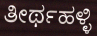
ತೀರ್ಥಹಳ್ಳಿ